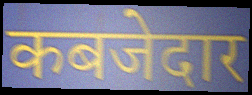
कबजेदार